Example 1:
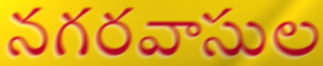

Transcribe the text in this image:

నగరవాసుల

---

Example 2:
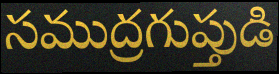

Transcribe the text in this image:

సముద్రగుప్తుడి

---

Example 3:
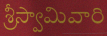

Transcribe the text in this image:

శ్రీస్వామివారి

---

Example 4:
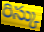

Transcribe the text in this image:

రిస్కు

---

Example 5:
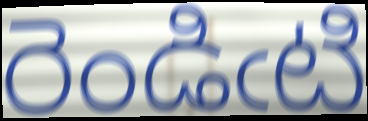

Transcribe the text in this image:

రెండిఁటి